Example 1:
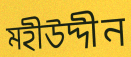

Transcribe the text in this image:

মহীউদ্দীন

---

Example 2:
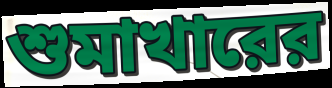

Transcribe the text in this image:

শুমাখারের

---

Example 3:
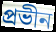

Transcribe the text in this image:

প্রভীন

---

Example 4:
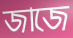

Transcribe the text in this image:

জাজে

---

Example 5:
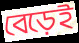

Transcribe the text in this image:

বেড়েই